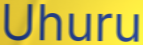
Uhuru